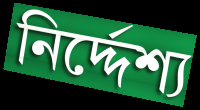
নির্দ্দেশ্য